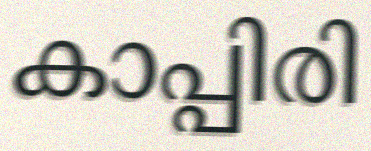
കാപ്പിരി